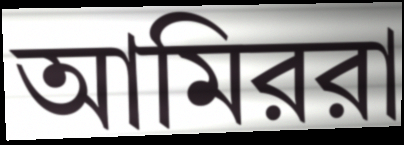
আমিররা